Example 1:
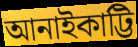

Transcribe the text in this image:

আনাইকাট্টি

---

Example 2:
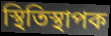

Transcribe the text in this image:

স্থিতিস্থাপক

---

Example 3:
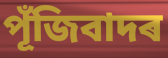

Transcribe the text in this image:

পূঁজিবাদৰ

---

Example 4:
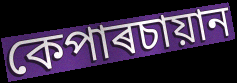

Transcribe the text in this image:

কেপাৰচায়ান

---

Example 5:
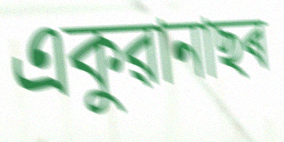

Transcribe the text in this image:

একুৱানাছৰ